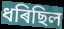
ধৰিছিল